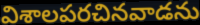
విశాలపరచినవాడను